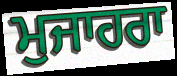
ਮੁਜਾਹਰਾ